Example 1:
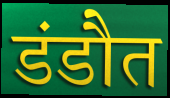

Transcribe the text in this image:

डंडौत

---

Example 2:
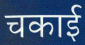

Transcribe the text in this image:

चकाई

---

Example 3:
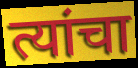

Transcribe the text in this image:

त्यांचा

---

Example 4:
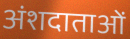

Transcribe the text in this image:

अंशदाताओं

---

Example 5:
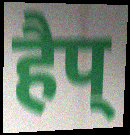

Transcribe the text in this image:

हैप्